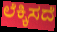
ಲೆಕ್ಕಿಸದೆ